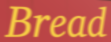
Bread